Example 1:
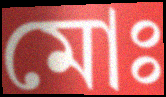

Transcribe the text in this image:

মোঃ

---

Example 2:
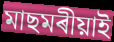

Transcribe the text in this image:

মাছমৰীয়াই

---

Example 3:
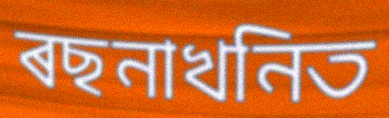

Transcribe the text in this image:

ৰছনাখনিত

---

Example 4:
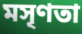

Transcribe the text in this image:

মসৃণতা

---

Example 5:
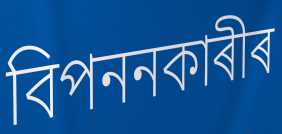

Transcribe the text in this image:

বিপননকাৰীৰ